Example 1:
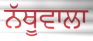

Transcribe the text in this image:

ਨੱਥੂਵਾਲਾ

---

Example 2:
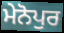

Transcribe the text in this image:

ਮੇਨੋਪੁਰ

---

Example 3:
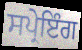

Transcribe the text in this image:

ਸਪ੍ਰੇਇੰਗ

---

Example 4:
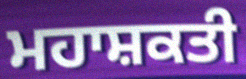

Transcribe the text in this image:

ਮਹਾਸ਼ਕਤੀ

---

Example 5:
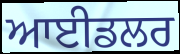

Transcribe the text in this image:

ਆਈਡਲਰ